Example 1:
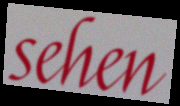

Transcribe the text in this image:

sehen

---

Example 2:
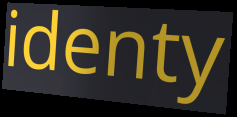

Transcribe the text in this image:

identy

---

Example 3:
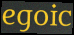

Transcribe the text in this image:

egoic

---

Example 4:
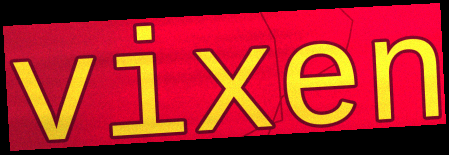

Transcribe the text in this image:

vixen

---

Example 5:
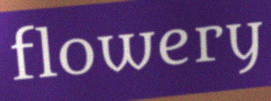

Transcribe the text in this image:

flowery